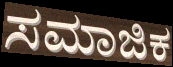
ಸಮಾಜಿಕ